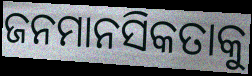
ଜନମାନସିକତାକୁ